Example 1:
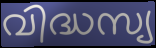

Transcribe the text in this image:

വിദ്ധസ്യ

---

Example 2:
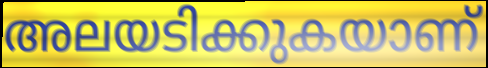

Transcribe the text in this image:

അലയടിക്കുകയാണ്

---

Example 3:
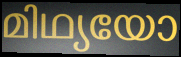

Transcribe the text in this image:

മിഥ്യയോ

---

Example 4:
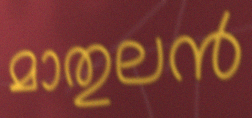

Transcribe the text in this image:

മാതുലൻ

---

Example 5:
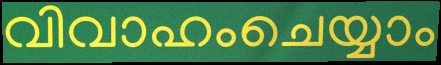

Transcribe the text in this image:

വിവാഹംചെയ്യാം